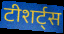
टीशर्ट्स